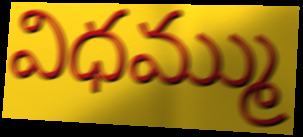
విధమ్ము